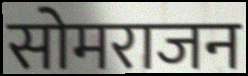
सोमराजन